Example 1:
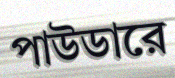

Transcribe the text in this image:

পাউডারে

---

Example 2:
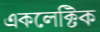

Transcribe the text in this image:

একলেক্টিক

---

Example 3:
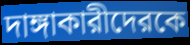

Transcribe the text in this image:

দাঙ্গাকারীদেরকে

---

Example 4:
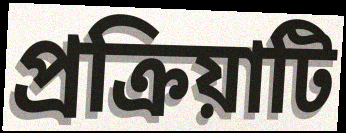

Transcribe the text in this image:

প্রক্রিয়াটি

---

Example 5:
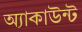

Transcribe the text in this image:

অ্যাকাউন্ট